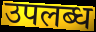
उपलब्ध